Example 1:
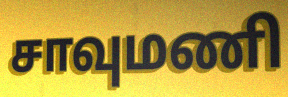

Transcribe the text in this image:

சாவுமணி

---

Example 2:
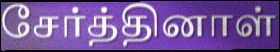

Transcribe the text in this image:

சேர்த்தினாள்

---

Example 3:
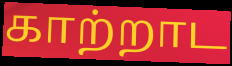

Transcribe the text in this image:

காற்றாட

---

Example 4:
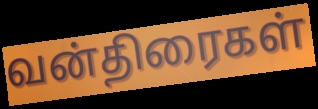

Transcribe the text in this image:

வன்திரைகள்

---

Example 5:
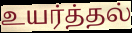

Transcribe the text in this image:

உயர்த்தல்